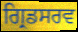
ਗ੍ਰਿਡਸਰਵ